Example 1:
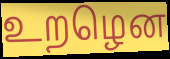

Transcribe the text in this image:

உறழென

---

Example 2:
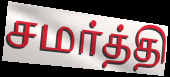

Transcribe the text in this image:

சமர்த்தி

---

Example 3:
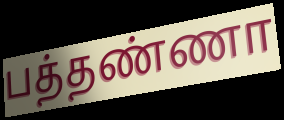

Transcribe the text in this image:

பத்தண்ணா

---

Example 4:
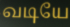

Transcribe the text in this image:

வடியே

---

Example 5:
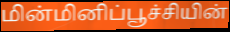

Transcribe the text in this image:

மின்மினிப்பூச்சியின்